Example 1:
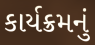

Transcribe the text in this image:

કાર્યક્રમનું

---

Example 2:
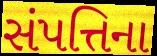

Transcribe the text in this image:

સંપત્તિના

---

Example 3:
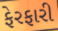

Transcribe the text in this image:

ફેરફારી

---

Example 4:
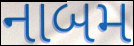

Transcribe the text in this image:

નાબમ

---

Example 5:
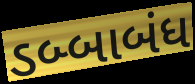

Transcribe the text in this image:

ડબ્બાબંધ